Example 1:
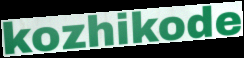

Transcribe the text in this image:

kozhikode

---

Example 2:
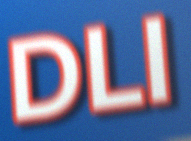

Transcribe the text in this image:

DLI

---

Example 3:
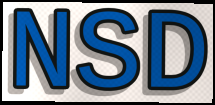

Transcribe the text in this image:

NSD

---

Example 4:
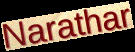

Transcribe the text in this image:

Narathar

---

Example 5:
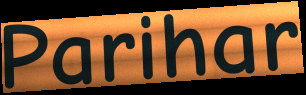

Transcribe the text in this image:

Parihar